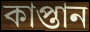
কাপ্তান